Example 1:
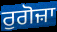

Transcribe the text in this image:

ਰੁਗੋਜ਼ਾ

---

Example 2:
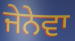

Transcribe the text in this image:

ਜੇਨੇਵਾ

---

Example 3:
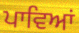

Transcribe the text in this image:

ਪਾਵਿਆਂ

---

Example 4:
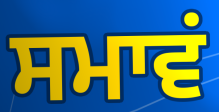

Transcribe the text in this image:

ਸਮਾਵਂ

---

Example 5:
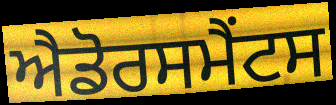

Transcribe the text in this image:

ਐਡੋਰਸਮੈਂਟਸ